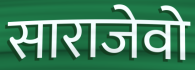
साराजेवो